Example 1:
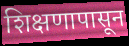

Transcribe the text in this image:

शिक्षणापासून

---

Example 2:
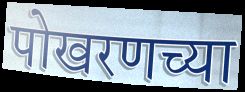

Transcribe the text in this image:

पोखरणच्या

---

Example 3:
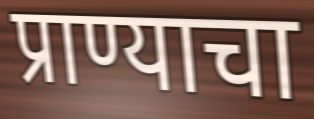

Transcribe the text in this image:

प्राण्याचा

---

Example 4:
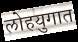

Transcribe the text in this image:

लोहयुगात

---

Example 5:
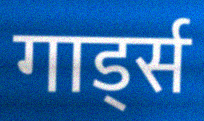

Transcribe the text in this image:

गार्ड्स